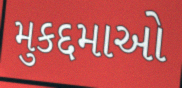
મુકદ્દમાઓ